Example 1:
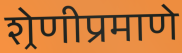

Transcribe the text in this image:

श्रेणीप्रमाणे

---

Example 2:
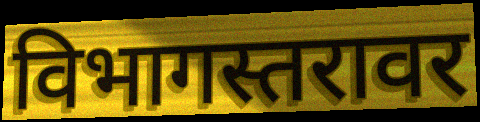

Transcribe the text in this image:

विभागस्तरावर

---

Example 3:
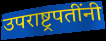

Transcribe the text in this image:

उपराष्ट्रपतींनी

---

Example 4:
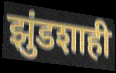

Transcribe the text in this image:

झुंडशाही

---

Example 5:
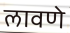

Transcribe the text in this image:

लावणे